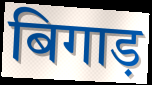
बिगाड़